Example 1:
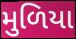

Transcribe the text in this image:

મુળિયા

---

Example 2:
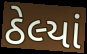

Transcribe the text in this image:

ઠેલ્યાં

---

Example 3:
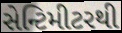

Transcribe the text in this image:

સેન્ટિમીટરથી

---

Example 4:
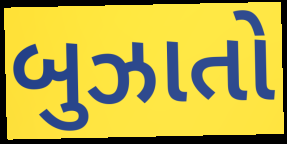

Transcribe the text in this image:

બુઝાતો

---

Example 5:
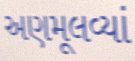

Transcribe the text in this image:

અણમૂલવ્યાં